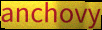
anchovy